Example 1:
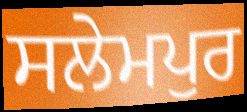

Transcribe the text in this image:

ਸਲੇਮਪੁਰ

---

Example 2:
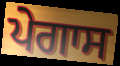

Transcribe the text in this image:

ਪੇਗਾਸ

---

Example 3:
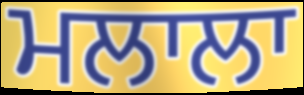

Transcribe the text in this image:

ਮਲਾਲਾ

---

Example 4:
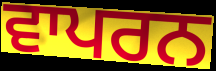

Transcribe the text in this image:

ਵਾਪਰਨ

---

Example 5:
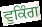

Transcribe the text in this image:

ਵੁਕਿੰਗ